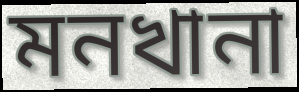
মনখানা